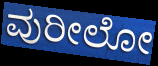
ವುರೀಲೋ